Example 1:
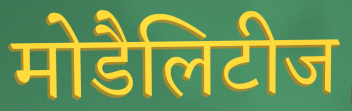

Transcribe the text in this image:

मोडैलिटीज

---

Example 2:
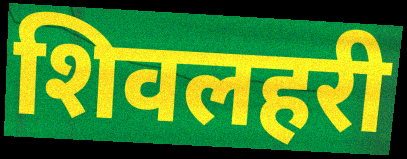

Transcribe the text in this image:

शिवलहरी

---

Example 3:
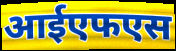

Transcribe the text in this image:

आईएफएस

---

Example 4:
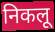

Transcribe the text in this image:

निकलू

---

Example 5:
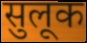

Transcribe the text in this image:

सुलूक